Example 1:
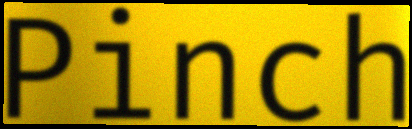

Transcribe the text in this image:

Pinch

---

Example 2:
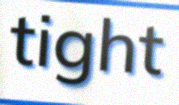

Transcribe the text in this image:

tight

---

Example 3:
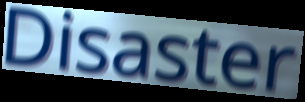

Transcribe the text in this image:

Disaster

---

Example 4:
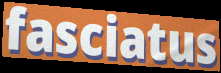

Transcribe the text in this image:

fasciatus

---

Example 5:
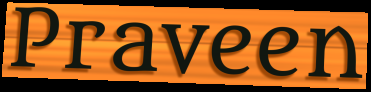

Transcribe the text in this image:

Praveen